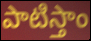
పాటిస్తాం